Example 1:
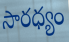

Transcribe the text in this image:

సారధ్యం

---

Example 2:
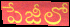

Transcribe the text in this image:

పేజీలో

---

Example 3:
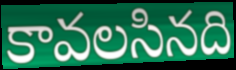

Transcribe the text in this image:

కావలసినది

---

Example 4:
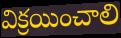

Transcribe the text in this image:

విక్రయించాలి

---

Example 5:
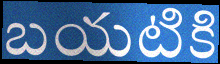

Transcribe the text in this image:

బయటికి